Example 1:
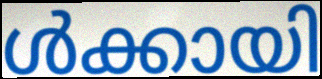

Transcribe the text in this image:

ൾക്കായി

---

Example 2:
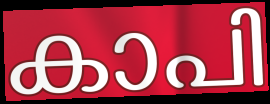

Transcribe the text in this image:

കാപി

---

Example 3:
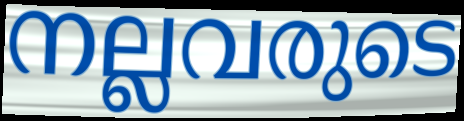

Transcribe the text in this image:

നല്ലവരുടെ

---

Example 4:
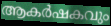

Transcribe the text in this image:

ആകർഷകവും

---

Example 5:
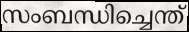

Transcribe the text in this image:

സംബന്ധിച്ചെന്ത്